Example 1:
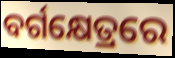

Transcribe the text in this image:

ବର୍ଗକ୍ଷେତ୍ରରେ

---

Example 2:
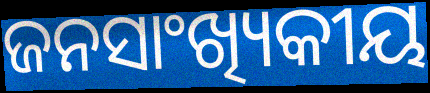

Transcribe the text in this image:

ଜନସାଂଖ୍ୟିକୀୟ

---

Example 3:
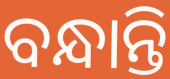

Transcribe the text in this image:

ବନ୍ଧାନ୍ତି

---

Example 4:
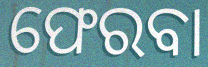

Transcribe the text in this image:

ଫେରବା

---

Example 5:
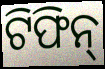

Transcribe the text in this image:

ଟିଫିନ୍